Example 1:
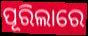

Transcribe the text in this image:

ପୂରିଲାରେ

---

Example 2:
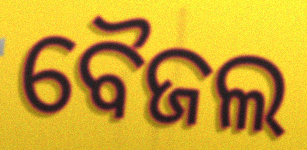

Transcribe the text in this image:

ବୈଜଲ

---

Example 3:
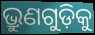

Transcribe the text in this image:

ଭ୍ରୁଣଗୁଡ଼ିକୁ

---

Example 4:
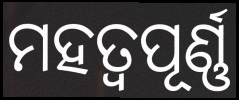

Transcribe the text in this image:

ମହତ୍ବପୂର୍ଣ୍ଣ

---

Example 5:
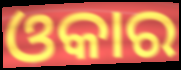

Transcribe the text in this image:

ଓକାର